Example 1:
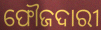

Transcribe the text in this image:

ଫୌଜଦାରୀ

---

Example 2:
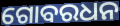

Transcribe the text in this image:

ଗୋବରଧନ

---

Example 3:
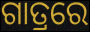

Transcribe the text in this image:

ଗାତ୍ରରେ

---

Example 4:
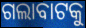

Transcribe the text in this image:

ଗଲାବାଟକୁ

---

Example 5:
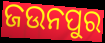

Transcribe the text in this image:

ଜଉନପୁର